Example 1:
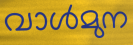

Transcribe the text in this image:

വാൾമുന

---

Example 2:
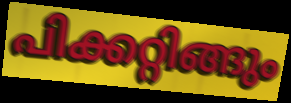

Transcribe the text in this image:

പിക്കറ്റിങ്ങും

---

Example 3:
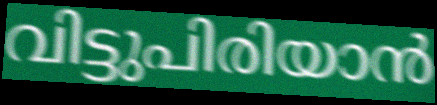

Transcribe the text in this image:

വിട്ടുപിരിയാൻ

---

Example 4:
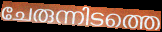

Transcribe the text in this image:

ചേരുന്നിടത്തെ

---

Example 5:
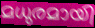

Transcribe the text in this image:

മധുരമായി